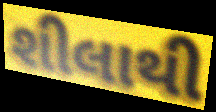
શીલાથી